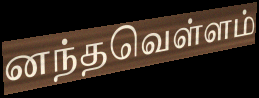
னந்தவெள்ளம்